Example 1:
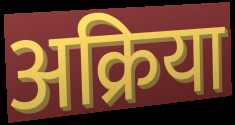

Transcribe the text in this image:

अक्रिया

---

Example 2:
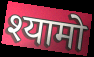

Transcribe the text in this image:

श्यामो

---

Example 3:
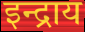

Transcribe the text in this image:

इन्द्राय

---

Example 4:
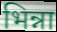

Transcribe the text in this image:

भिन्ना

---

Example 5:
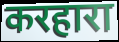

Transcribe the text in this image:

करहारा